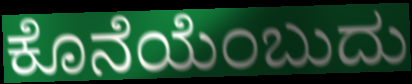
ಕೊನೆಯೆಂಬುದು